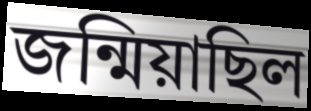
জন্মিয়াছিল